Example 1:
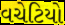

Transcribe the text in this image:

વચેટિયો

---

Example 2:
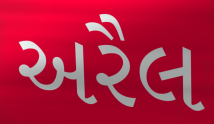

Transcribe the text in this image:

અરૈલ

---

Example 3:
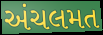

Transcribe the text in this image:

અંચલમત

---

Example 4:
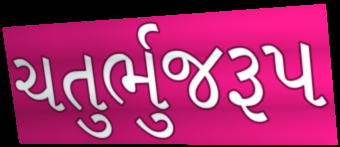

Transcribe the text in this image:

ચતુર્ભુજરૂપ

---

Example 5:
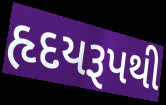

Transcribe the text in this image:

હૃદયરૂપથી